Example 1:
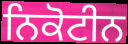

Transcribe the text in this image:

ਨਿਕੋਟੀਨ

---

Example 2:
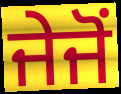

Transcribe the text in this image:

ਜੇਜੋਂ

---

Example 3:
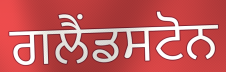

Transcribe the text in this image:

ਗਲੈਂਡਸਟੋਨ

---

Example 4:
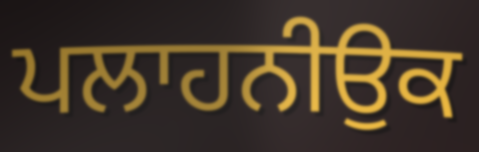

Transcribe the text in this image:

ਪਲਾਹਨੀਉਕ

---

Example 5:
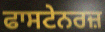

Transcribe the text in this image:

ਫਾਸਟੇਨਰਜ਼